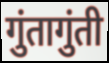
गुंतागुंती